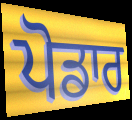
ਪੋਡਾਰ